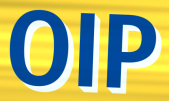
OIP